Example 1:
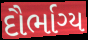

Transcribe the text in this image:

દૌર્ભાગ્ય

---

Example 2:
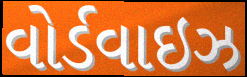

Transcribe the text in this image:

વોર્ડવાઇઝ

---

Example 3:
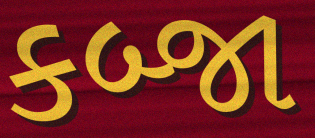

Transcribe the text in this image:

કબ્જા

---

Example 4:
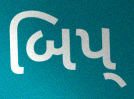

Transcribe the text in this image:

બિપ્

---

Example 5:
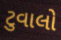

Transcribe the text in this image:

ટુવાલો